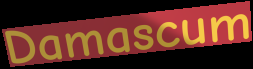
Damascum